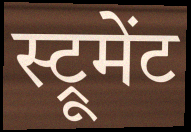
स्ट्रूमेंट